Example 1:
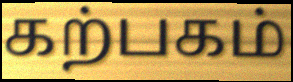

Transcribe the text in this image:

கற்பகம்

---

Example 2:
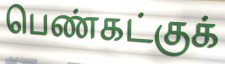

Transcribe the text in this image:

பெண்கட்குக்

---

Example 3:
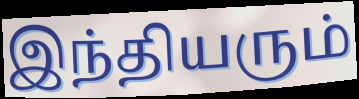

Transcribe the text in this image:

இந்தியரும்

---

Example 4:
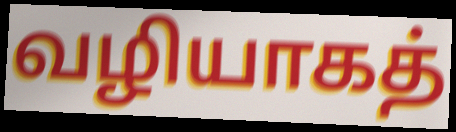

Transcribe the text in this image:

வழியாகத்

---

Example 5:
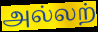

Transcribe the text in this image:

அல்லற்